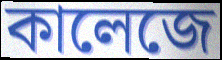
কালেজে